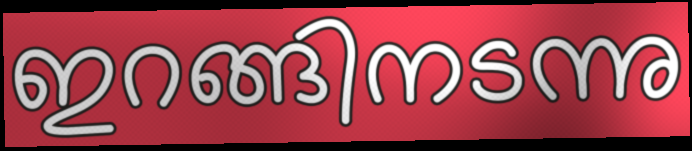
ഇറങ്ങിനടന്നു